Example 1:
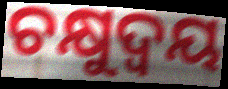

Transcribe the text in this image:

ଚକ୍ଷୁଦ୍ୱୟ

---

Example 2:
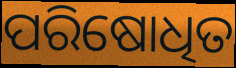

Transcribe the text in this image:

ପରିଷୋଧିତ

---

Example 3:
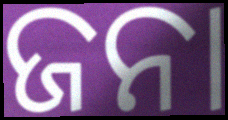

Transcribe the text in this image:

ଜନା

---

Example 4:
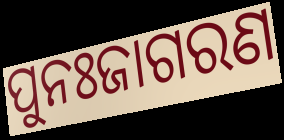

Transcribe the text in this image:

ପୁନଃଜାଗରଣ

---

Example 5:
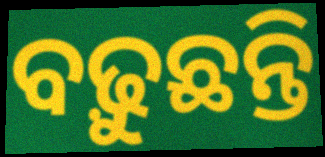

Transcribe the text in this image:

ବଢ଼ୁଛନ୍ତି